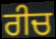
ਰੀਚ